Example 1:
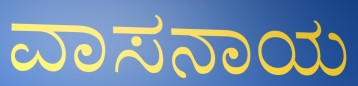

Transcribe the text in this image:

ವಾಸನಾಯ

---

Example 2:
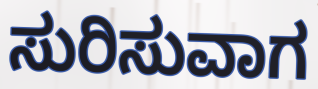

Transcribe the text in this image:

ಸುರಿಸುವಾಗ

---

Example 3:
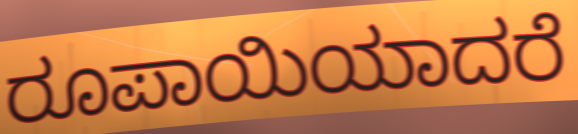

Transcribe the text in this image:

ರೂಪಾಯಿಯಾದರೆ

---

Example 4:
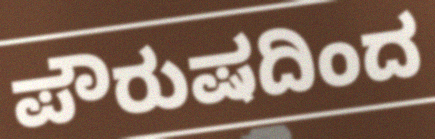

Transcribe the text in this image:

ಪೌರುಷದಿಂದ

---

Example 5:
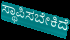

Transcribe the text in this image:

ಸ್ಥಾಪಿಸಬೇಕಿದೆ